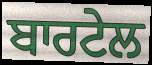
ਬਾਰਟੇਲ